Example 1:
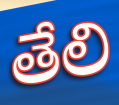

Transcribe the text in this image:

తేలి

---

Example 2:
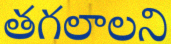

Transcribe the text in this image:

తగలాలని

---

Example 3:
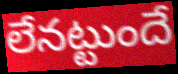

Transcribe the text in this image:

లేనట్టుందే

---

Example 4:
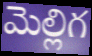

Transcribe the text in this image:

మెల్లిగ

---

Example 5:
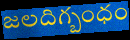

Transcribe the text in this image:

జలదిగ్బంధం